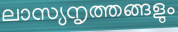
ലാസ്യനൃത്തങ്ങളും